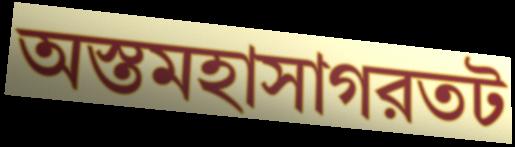
অস্তমহাসাগরতট